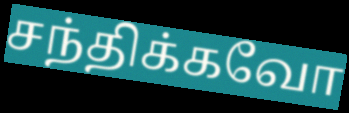
சந்திக்கவோ